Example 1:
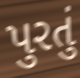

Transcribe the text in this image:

પુરતું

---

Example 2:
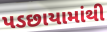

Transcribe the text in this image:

પડછાયામાંથી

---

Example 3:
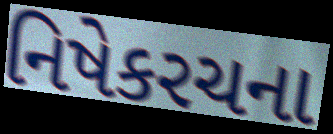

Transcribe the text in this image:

નિષેકરચના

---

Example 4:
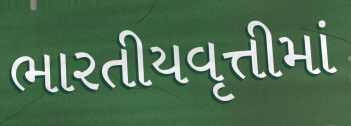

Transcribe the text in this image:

ભારતીયવૃત્તીમાં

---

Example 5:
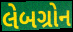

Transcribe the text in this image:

લેબગ્રોન